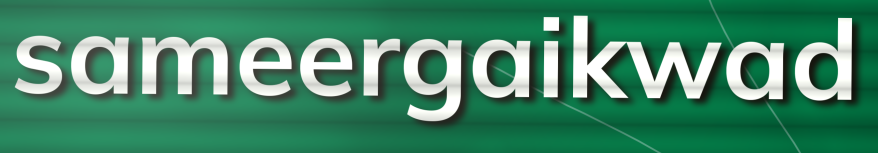
sameergaikwad